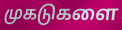
முகடுகளை